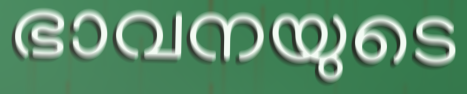
ഭാവനയുടെ